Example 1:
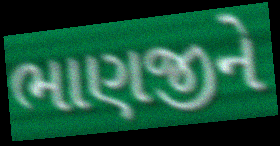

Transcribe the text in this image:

ભાણજીને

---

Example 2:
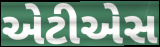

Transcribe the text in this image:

એટીએસ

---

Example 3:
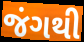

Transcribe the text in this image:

જંગથી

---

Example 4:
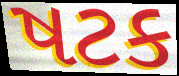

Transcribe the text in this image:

ષટક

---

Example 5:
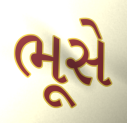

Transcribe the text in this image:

ભૂસે